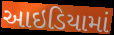
આઇડિયામાં